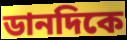
ডানদিকে